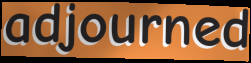
adjourned